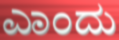
ಎಾಂದು